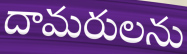
దామరులను